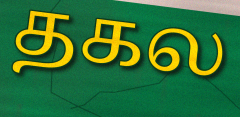
தகல